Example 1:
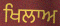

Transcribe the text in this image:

ਖਿਲਾਅ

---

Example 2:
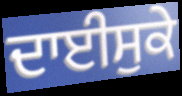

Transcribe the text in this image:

ਦਾਈਸੁਕੇ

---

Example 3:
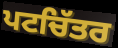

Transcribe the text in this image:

ਪਟਚਿੱਤਰ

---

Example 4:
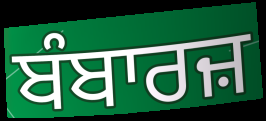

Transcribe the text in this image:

ਬੰਬਾਰਜ਼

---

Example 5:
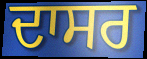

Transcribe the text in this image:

ਦਾਸਰ